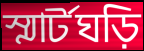
স্মার্টঘড়ি